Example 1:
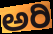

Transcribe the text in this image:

ಅರಿ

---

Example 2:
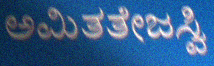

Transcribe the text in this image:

ಅಮಿತತೇಜಸ್ವಿ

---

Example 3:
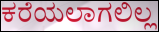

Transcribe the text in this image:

ಕರೆಯಲಾಗಲಿಲ್ಲ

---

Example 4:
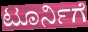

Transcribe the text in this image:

ಟೂರ್ನಿಗೆ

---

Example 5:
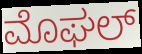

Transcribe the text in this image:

ಮೊಘಲ್